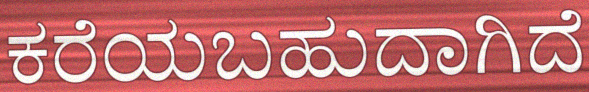
ಕರೆಯಬಹುದಾಗಿದೆ